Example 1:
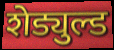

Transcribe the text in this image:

शेड्युल्ड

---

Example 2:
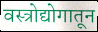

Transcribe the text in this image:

वस्त्रोद्योगातून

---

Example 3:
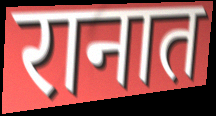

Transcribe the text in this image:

रानात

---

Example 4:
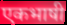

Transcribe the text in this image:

एकभाषी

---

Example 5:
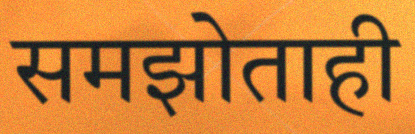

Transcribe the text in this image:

समझोताही